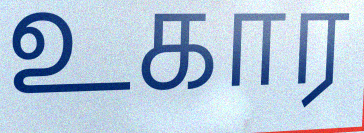
உகார